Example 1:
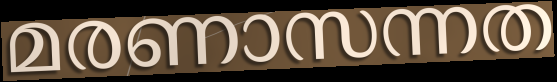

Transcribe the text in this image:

മരണാസന്നത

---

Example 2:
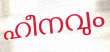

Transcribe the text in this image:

ഹീനവും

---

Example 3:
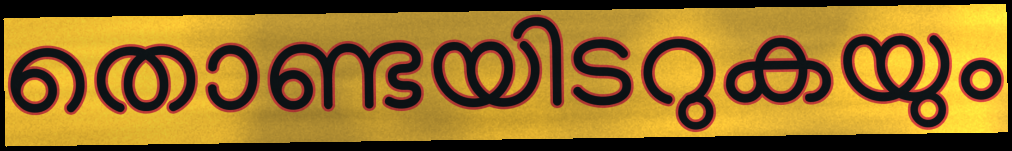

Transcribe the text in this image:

തൊണ്ടയിടറുകയും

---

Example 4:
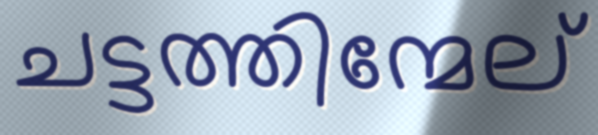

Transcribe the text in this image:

ചട്ടത്തിന്മേല്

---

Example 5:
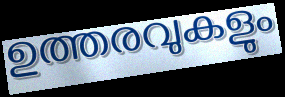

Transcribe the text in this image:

ഉത്തരവുകളും